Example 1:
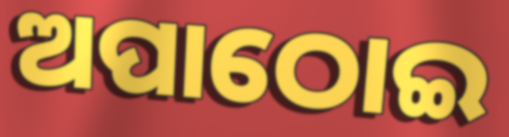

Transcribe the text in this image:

ଅପାଠୋଇ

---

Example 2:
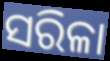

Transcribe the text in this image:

ସରିଳା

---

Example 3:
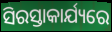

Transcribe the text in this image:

ସିରସ୍ତାକାର୍ଯ୍ୟରେ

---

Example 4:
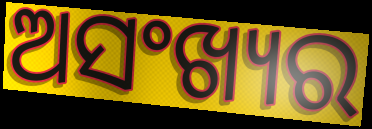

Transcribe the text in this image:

ଅସଂଖ୍ୟର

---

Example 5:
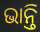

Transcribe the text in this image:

ଭାନ୍ତି